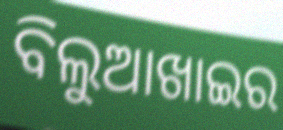
ବିଲୁଆଖାଇର